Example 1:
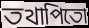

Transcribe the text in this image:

তথাপিতো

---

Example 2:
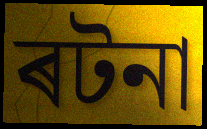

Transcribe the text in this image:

ৰটনা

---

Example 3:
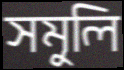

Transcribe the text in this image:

সমুলি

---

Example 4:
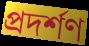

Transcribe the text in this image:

প্ৰদৰ্শণ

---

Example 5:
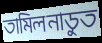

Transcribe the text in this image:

তামিলনাডুত